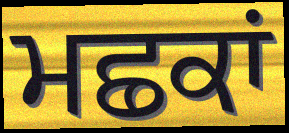
ਮਛਕਾਂ